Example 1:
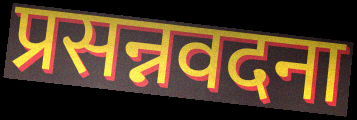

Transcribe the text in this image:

प्रसन्नवदना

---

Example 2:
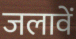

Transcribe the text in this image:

जलावें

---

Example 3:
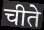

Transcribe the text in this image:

चीते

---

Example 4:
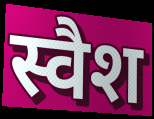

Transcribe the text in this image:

स्वैश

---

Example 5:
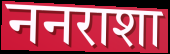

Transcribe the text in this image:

ननराशा